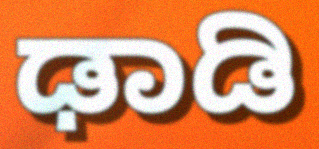
ಢಾಡಿ